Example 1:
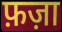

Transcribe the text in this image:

फ़ज़ा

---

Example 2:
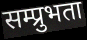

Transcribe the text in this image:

सम्प्रुभता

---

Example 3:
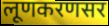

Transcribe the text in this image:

लूणकरणसर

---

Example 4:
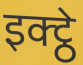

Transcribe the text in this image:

इक्ट्ठे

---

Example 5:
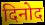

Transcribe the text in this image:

दिनोद